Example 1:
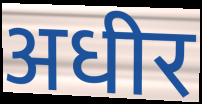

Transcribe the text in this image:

अधीर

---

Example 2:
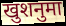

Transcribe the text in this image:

खुशनुमा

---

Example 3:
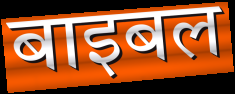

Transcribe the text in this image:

बाइबल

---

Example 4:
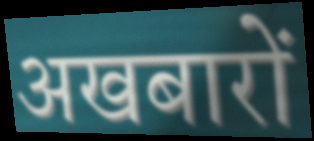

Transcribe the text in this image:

अखबारों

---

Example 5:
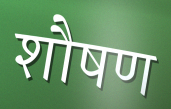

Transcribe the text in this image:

शौषण